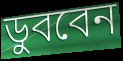
ডুববেন